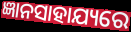
ଜ୍ଞାନସାହାଯ୍ୟରେ